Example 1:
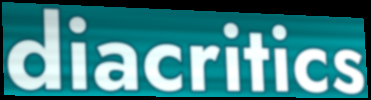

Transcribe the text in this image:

diacritics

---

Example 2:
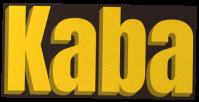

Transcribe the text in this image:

Kaba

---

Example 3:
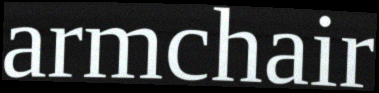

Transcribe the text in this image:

armchair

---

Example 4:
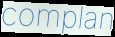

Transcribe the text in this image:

complan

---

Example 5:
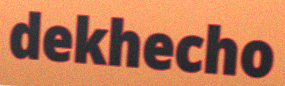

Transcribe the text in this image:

dekhecho